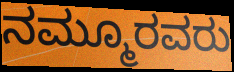
ನಮ್ಮೂರವರು